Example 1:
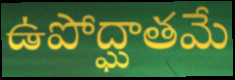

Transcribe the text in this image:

ఉపోద్ఘాతమే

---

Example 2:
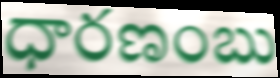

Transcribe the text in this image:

ధారణంబు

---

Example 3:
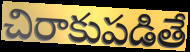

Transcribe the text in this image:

చిరాకుపడితే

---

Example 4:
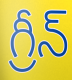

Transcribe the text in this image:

గ్రీన్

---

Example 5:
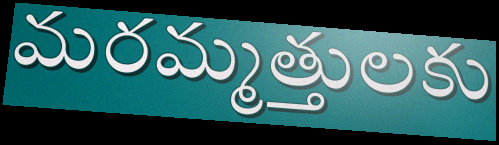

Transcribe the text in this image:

మరమ్మత్తులకు